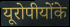
यूरोपीयोंके